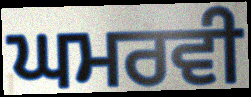
ਘਮਰਵੀ